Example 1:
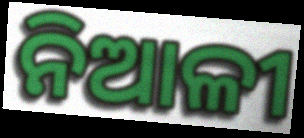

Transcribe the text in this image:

ନିଆଳୀ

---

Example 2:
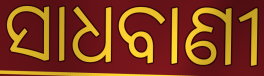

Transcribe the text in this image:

ସାଧବାଣୀ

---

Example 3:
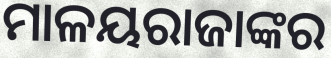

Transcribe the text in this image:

ମାଳୟରାଜାଙ୍କର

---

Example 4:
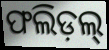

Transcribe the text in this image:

ଫଲିଡ଼ଲ୍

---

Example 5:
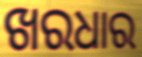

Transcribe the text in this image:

ଖରଧାର